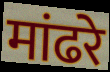
मांढरे